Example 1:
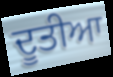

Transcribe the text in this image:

ਦੂਤੀਆ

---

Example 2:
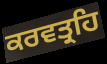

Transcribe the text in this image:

ਕਰਵਤ੍ਰਹਿ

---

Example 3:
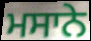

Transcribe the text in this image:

ਮਸਾਨੇ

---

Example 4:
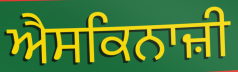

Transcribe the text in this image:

ਐਸਕਿਨਾਜ਼ੀ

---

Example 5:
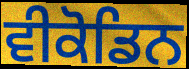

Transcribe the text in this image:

ਵੀਕੋਡਿਨ